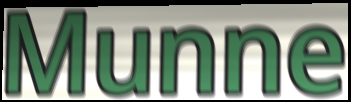
Munne